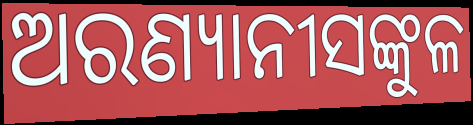
ଅରଣ୍ୟାନୀସଙ୍କୁଳ